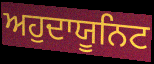
ਅਹੁਦਾਯੂਨਿਟ